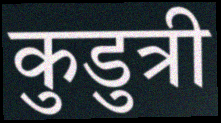
कुडुत्री